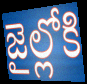
జైల్లోకి